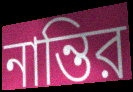
নান্তির